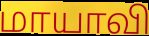
மாயாவி